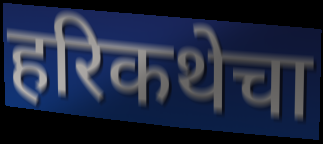
हरिकथेचा